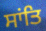
ਸਾਂਤਿ